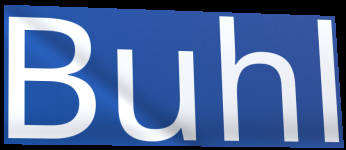
Buhl